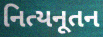
નિત્યનૂતન